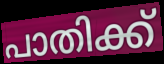
പാതിക്ക്